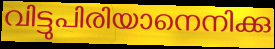
വിട്ടുപിരിയാനെനിക്കു